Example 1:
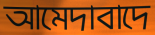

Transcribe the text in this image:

আমেদাবাদে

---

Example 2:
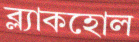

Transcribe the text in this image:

ব্ল্যাকহোল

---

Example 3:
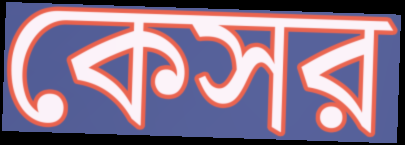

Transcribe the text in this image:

কেসর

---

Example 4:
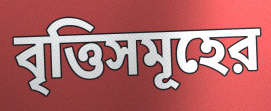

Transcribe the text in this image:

বৃত্তিসমূহের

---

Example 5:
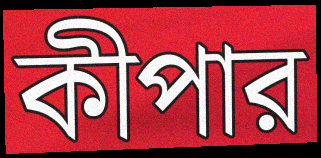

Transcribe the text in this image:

কীপার